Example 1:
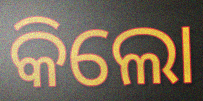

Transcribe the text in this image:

କିଲୋ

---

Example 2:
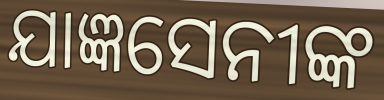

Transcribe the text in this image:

ଯାଜ୍ଞସେନୀଙ୍କ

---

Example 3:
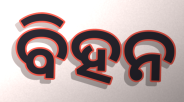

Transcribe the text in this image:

ବିହନ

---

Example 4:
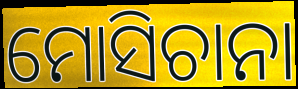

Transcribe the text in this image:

ମୋସିଚାନା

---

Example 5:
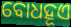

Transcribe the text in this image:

ବୋଧହୂଏ